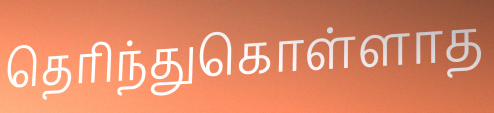
தெரிந்துகொள்ளாத